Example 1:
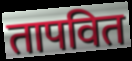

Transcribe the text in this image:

तापवित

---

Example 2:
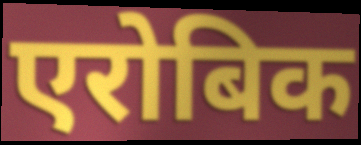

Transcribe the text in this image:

एरोबिक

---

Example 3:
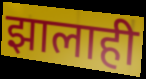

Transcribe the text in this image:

झालाही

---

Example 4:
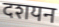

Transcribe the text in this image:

दशयन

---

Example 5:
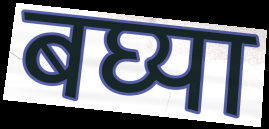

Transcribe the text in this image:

बघ्या